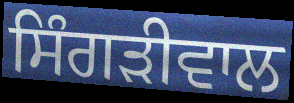
ਸਿੰਗੜੀਵਾਲ